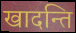
खादन्ति